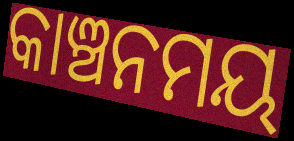
କାଞ୍ଚନମୟ